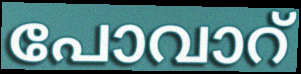
പോവാറ്